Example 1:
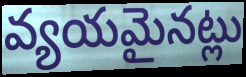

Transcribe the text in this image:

వ్యయమైనట్లు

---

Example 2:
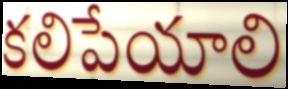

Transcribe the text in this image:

కలిపేయాలి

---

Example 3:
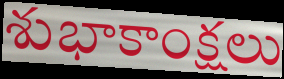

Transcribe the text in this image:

శుభాకాంక్షలు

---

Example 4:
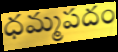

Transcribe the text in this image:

ధమ్మపదం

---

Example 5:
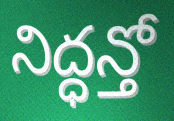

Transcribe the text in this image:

నిద్ధన్తో